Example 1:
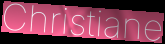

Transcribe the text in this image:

Christiane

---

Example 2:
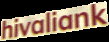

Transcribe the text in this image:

hivaliank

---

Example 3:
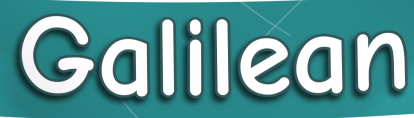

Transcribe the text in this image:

Galilean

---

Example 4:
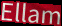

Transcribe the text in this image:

Ellam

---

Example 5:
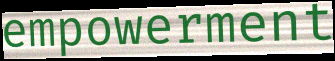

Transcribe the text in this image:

empowerment